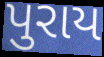
પુરાય